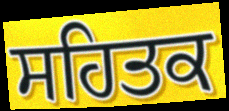
ਸਹਿਤਕ